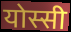
योस्सी